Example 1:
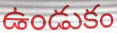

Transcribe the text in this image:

ఉండుకం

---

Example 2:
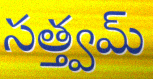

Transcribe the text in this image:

సత్త్వమ్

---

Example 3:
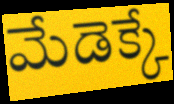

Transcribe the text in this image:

మేడెక్కే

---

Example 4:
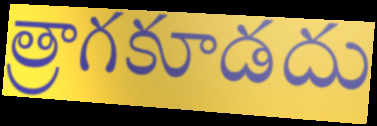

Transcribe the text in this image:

త్రాగకూడదు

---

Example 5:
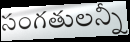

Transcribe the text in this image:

సంగతులన్నీ